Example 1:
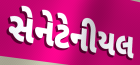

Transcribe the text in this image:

સેનેટેનીયલ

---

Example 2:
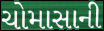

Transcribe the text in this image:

ચોમાસાની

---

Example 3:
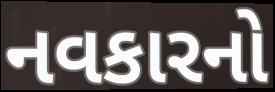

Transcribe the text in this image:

નવકારનો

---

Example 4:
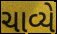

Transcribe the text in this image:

ચાવ્યે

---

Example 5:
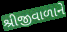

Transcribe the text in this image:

શ્રીજીવાળાને